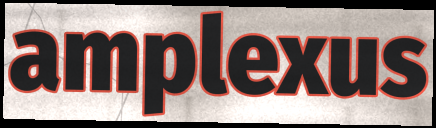
amplexus